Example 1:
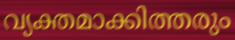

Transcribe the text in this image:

വ്യക്തമാക്കിത്തരും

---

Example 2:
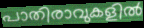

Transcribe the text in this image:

പാതിരാവുകളിൽ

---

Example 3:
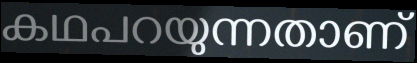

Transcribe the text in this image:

കഥപറയുന്നതാണ്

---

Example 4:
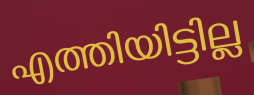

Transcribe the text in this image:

എത്തിയിട്ടില്ല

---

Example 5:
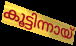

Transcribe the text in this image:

കൂട്ടിന്നായ്